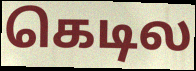
கெடில